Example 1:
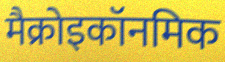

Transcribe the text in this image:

मैक्रोइकॉनमिक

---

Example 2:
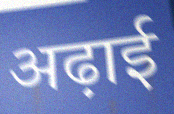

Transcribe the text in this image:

अढ़ाई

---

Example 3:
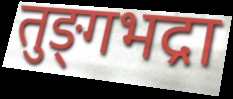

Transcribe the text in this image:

तुङ्गभद्रा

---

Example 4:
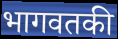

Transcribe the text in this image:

भागवतकी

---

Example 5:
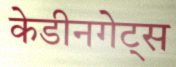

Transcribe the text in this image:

केडीनगेट्स